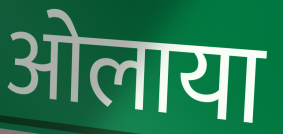
ओलाया